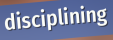
disciplining